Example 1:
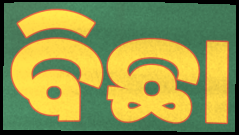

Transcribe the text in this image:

ବିଛା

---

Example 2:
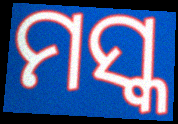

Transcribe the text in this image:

ମସ୍କ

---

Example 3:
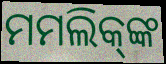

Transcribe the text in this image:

ମମଲିକ୍‌ଙ୍କ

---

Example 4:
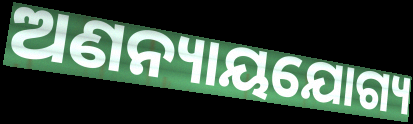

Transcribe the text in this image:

ଅଣନ୍ୟାୟଯୋଗ୍ୟ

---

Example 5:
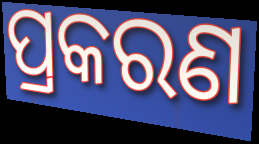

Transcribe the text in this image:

ପ୍ରକରଣ